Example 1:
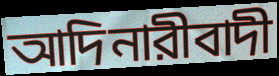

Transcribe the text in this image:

আদিনারীবাদী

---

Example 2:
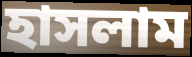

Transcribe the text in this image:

হাসলাম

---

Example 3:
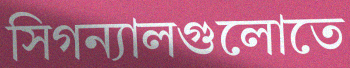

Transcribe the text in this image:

সিগন্যালগুলোতে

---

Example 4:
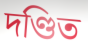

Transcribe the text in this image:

দণ্ডিত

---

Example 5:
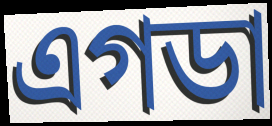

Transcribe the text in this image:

এগডা